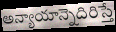
అన్యాయాన్నెదిరిస్తే